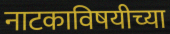
नाटकाविषयीच्या